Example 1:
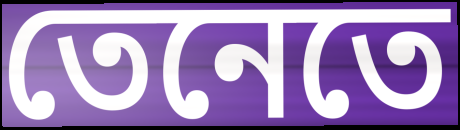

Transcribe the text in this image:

তেনেতে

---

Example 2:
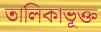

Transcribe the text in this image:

তালিকাভূক্ত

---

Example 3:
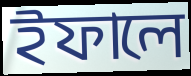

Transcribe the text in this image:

ইফালে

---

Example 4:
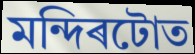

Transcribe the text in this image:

মন্দিৰটোত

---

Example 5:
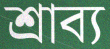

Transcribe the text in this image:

শ্ৰাব্য